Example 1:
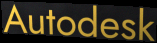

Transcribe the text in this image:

Autodesk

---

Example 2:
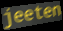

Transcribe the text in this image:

jeeten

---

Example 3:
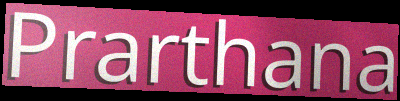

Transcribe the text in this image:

Prarthana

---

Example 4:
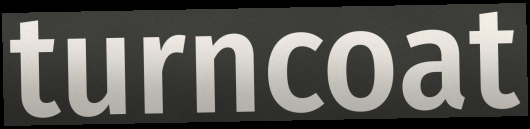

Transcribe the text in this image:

turncoat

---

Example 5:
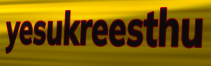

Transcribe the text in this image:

yesukreesthu